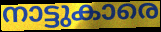
നാട്ടുകാരെ